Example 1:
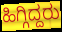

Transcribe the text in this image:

ಹಿಗ್ಗಿದ್ದರು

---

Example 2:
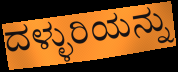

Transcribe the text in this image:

ದಳ್ಳುರಿಯನ್ನು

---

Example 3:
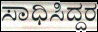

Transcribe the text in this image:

ಸಾಧಿಸಿದ್ದರ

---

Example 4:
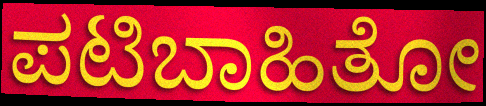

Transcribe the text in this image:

ಪಟಿಬಾಹಿತೋ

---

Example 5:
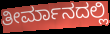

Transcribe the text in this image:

ತೀರ್ಮಾನದಲ್ಲಿ